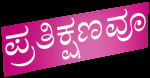
ಪ್ರತಿಕ್ಷಣವೂ